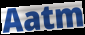
Aatm